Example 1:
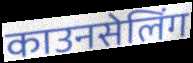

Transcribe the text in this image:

काउनसेलिंग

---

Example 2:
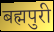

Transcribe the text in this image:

बह्मपुरी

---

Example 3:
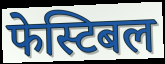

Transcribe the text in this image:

फेस्टिबल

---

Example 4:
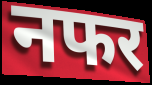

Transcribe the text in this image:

नफर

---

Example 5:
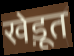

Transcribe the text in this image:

खेड़ूत